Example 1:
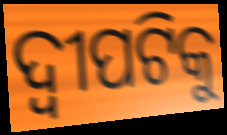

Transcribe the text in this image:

ଦ୍ୱୀପଟିକୁ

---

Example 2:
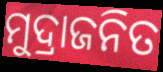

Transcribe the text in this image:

ମୁଦ୍ରାଜନିତ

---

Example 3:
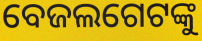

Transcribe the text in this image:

ବେଜଲଗେଟଙ୍କୁ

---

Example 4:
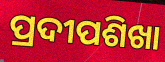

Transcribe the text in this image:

ପ୍ରଦୀପଶିଖା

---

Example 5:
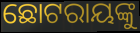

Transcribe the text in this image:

ଛୋଟରାୟଙ୍କୁ